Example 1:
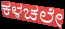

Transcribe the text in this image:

ಕಳಚಲೇ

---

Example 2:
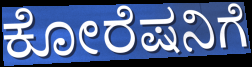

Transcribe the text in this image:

ಕೋರೆಷನಿಗೆ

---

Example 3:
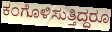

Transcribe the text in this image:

ಕಂಗೊಳಿಸುತ್ತಿದ್ದರೂ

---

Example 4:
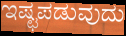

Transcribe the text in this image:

ಇಷ್ಟಪಡುವುದು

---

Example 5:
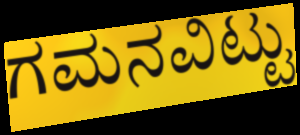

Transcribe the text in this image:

ಗಮನವಿಟ್ಟು